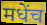
मधेंच